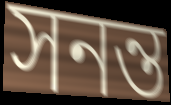
সনন্ত